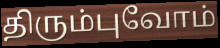
திரும்புவோம்